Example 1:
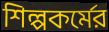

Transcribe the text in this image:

শিল্পকর্মের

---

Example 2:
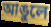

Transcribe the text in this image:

আঙুলে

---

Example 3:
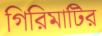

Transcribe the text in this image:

গিরিমাটির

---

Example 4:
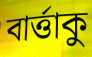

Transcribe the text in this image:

বার্ত্তাকু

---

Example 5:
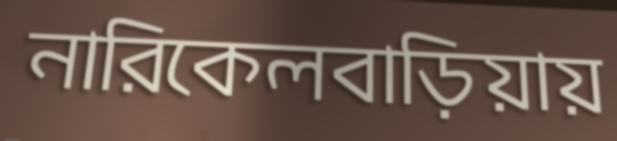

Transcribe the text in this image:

নারিকেলবাড়িয়ায়